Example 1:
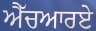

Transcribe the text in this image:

ਐੱਚਆਰਏ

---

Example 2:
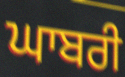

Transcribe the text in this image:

ਘਾਬਰੀ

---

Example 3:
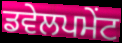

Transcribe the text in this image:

ਡਵੇਲਪਮੇਂਟ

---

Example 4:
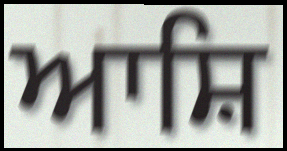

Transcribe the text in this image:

ਆਸ਼ਿ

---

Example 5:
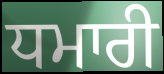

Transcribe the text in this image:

ਧਮਾਰੀ